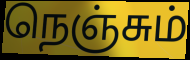
நெஞ்சும்